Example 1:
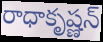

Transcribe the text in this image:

రాధాకృష్ణన్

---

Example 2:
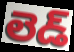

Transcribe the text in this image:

లెడ్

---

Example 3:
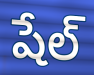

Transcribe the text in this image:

షేల్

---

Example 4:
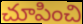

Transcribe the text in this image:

చూపించి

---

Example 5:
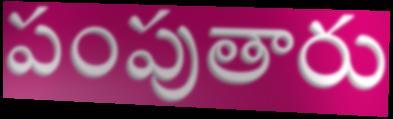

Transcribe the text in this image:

పంపుతారు